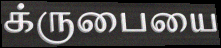
க்ருபையை